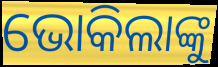
ଭୋକିଲାଙ୍କୁ